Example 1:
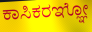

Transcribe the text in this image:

ಕಾಸಿಕರಞ್ಞೋ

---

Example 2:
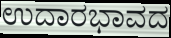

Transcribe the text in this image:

ಉದಾರಭಾವದ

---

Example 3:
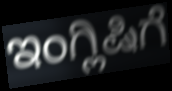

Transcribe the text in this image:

ಇಂಗ್ಲಿಷಿಗೆ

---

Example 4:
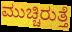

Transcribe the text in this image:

ಮುಚ್ಚಿರುತ್ತೆ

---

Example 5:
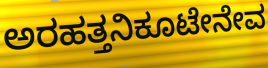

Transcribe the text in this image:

ಅರಹತ್ತನಿಕೂಟೇನೇವ